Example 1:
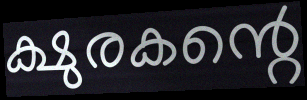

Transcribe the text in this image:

ക്ഷുരകന്റെ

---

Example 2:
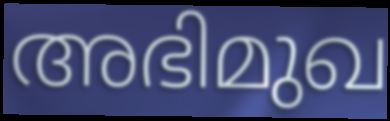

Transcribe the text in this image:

അഭിമുഖ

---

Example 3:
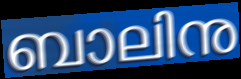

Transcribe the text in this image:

ബാലിനു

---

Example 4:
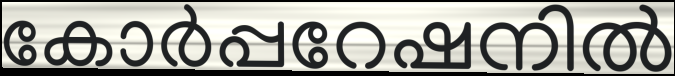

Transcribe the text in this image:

കോർപ്പറേഷനിൽ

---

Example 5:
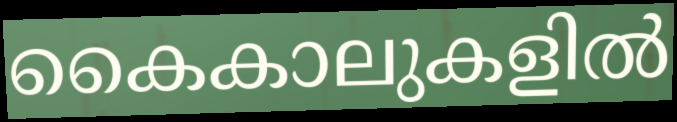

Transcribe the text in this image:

കൈകാലുകളിൽ